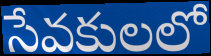
సేవకులలో